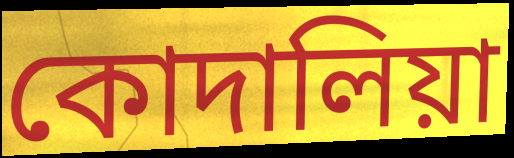
কোদালিয়া